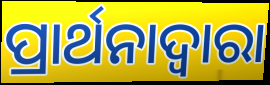
ପ୍ରାର୍ଥନାଦ୍ଵାରା